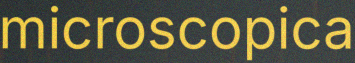
microscopica